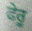
ਫੇਰੂ